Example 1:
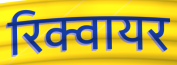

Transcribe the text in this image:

रिक्वायर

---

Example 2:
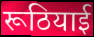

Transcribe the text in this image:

रूठियाई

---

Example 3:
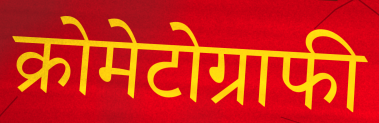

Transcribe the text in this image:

क्रोमेटोग्राफी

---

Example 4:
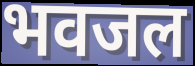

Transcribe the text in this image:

भवजल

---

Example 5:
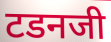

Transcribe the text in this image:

टडनजी